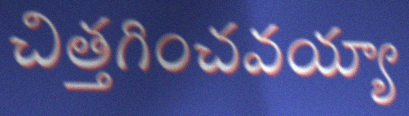
చిత్తగించవయ్యా